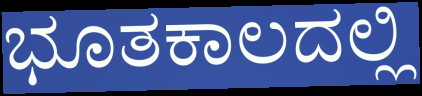
ಭೂತಕಾಲದಲ್ಲಿ